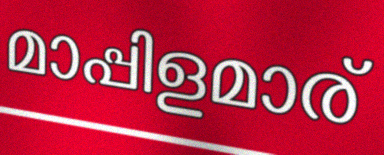
മാപ്പിളമാര്